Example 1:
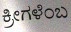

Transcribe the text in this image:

ಕ್ರೀಗಳೆಂಬ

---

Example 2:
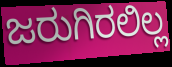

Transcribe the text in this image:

ಜರುಗಿರಲಿಲ್ಲ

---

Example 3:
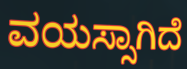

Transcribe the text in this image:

ವಯಸ್ಸಾಗಿದೆ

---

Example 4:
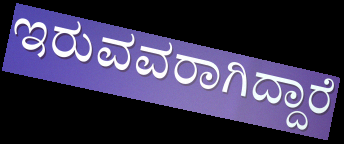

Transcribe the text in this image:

ಇರುವವರಾಗಿದ್ದಾರೆ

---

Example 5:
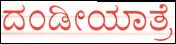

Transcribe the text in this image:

ದಂಡೀಯಾತ್ರೆ